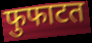
फुफाटत